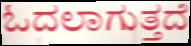
ಓದಲಾಗುತ್ತದೆ